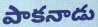
పాకనాడు